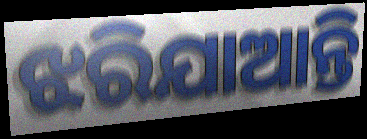
ଝରିଯାଆନ୍ତି